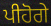
ਪੀਹੋਗੇ